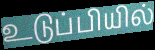
உடுப்பியில்